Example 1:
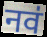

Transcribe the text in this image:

नव॑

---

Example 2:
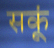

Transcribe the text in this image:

सकूं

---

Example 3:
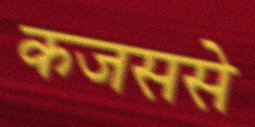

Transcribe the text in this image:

कजससे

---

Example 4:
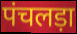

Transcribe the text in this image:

पंचलड़ा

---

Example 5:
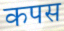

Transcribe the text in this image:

कपस